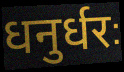
धनुर्धरः